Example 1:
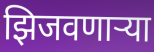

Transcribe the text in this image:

झिजवणाऱ्या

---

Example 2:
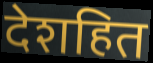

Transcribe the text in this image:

देशहित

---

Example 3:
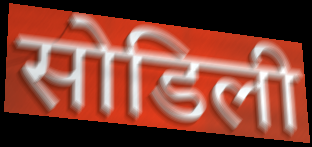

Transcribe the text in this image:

सोडिली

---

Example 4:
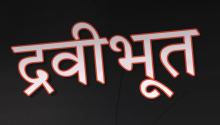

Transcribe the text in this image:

द्रवीभूत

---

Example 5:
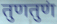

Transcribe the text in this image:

तुणतुणं